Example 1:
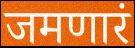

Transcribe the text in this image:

जमणारं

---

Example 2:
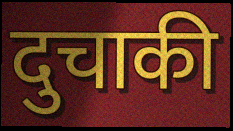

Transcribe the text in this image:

दुचाकी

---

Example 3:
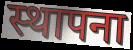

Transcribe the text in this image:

स्थापना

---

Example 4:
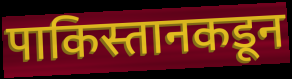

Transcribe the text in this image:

पाकिस्तानकडून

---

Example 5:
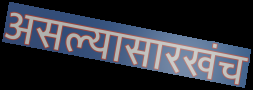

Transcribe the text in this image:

असल्यासारखंच